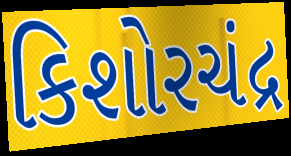
કિશોરચંદ્ર